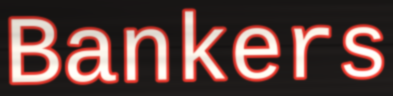
Bankers